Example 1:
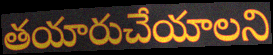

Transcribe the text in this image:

తయారుచేయాలని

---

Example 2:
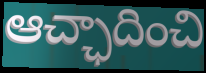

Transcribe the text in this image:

ఆచ్ఛాదించి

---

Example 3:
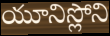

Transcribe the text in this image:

యూనిస్లోని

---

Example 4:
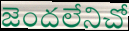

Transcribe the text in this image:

జెందలేనిచో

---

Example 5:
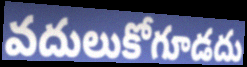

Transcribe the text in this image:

వదులుకోగూడదు